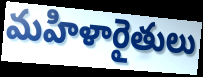
మహిళారైతులు